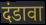
दंडावा